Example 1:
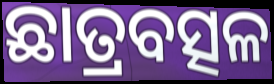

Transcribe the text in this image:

ଛାତ୍ରବତ୍ସଳ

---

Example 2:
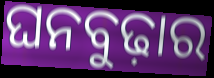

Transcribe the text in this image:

ଘନବୁଢ଼ାର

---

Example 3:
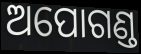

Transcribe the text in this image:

ଅପୋଗଣ୍ଡ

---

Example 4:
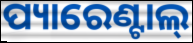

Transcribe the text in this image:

ପ୍ୟାରେଣ୍ଟାଲ୍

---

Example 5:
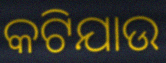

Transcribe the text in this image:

କଟିଯାଉ